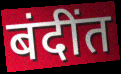
बंदींत